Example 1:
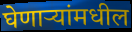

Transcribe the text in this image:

घेणाऱ्यांमधील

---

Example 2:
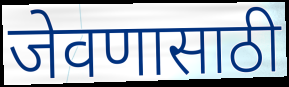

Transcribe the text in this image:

जेवणासाठी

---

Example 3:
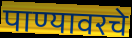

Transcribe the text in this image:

पाण्यावरचे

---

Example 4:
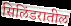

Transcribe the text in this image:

सिलिंडरातील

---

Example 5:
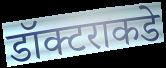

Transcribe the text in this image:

डॉक्टराकडे